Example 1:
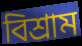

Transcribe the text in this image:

বিশ্ৰাম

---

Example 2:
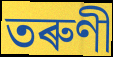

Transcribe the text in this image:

তৰুণী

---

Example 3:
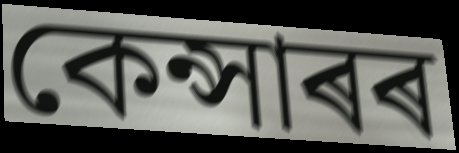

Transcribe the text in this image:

কেন্সাৰৰ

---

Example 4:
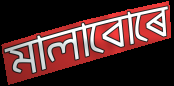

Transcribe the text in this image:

মালাবোৰে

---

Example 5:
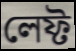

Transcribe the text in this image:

লেফ্ট